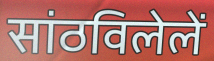
सांठविलेलें